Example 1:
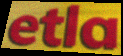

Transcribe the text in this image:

etla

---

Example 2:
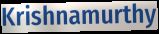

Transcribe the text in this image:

Krishnamurthy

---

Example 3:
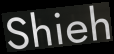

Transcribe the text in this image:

Shieh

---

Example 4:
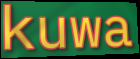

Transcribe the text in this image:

kuwa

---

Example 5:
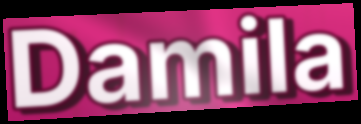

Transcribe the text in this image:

Damila